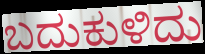
ಬದುಕುಳಿದು